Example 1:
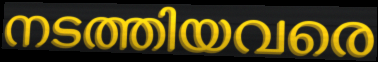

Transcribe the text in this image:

നടത്തിയവരെ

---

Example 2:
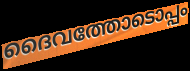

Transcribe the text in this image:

ദൈവത്തോടൊപ്പം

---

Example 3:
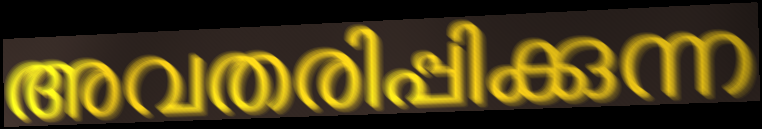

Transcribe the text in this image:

അവതരിപ്പിക്കുന്ന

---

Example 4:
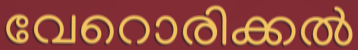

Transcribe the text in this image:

വേറൊരിക്കൽ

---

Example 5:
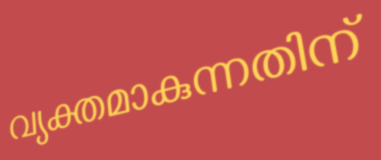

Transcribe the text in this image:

വ്യക്തമാകുന്നതിന്